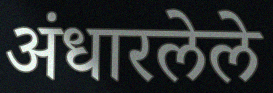
अंधारलेले